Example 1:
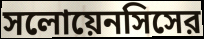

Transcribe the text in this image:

সলোয়েনসিসের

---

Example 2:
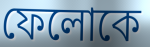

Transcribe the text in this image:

ফেলোকে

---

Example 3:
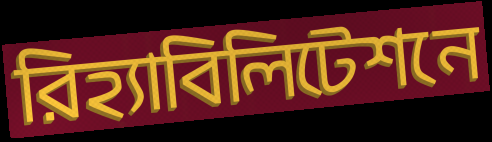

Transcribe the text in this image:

রিহ্যাবিলিটেশনে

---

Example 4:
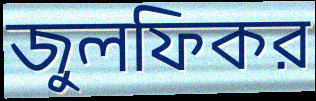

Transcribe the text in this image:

জুলফিকর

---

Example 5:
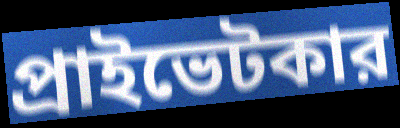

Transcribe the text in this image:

প্রাইভেটকার